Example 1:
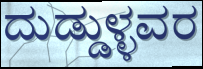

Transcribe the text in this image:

ದುಡ್ಡುಳ್ಳವರ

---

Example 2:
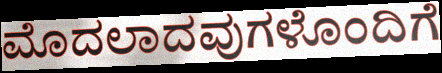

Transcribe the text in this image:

ಮೊದಲಾದವುಗಳೊಂದಿಗೆ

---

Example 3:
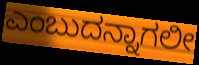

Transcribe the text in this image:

ಎಂಬುದನ್ನಾಗಲೀ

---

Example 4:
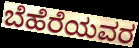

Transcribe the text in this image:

ಬೆಹೆರೆಯವರ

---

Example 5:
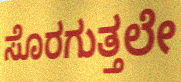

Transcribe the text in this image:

ಸೊರಗುತ್ತಲೇ